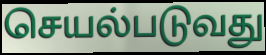
செயல்படுவது